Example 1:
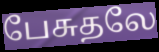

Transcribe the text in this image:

பேசுதலே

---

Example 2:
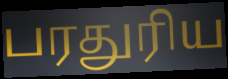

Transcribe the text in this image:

பரதுரிய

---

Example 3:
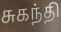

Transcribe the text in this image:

சுகந்தி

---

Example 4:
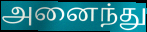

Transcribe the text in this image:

அனைந்து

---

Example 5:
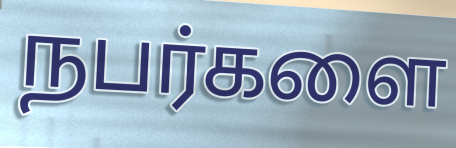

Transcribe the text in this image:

நபர்களை